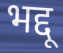
भद्दू